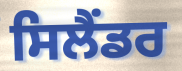
ਸਿਲੈਂਡਰ